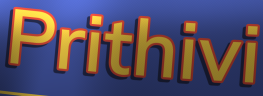
Prithivi